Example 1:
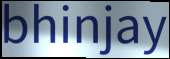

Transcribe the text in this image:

bhinjay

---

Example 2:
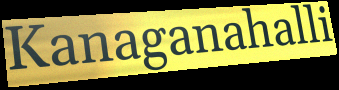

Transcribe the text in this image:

Kanaganahalli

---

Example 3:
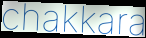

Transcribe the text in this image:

chakkara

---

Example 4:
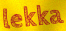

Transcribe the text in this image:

lekka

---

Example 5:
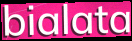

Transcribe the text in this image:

bialata